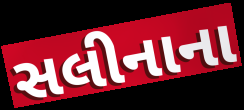
સલીનાના